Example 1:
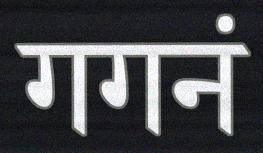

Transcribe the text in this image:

गगनं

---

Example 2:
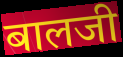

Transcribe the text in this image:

बालजी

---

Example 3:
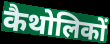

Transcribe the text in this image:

कैथोलिकों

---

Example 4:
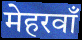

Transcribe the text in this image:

मेहरवाँ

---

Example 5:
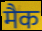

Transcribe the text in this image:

मैक